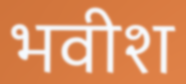
भवीश